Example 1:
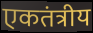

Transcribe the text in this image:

एकतंत्रीय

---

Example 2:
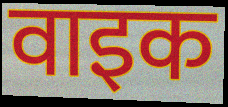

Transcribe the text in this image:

वाइक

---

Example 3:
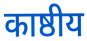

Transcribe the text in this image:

काष्ठीय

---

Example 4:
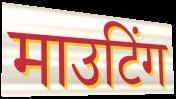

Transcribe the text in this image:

माउटिंग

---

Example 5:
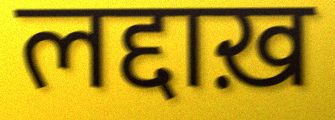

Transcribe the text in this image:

लद्दाख़